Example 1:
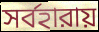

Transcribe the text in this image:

সর্বহারায়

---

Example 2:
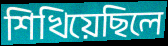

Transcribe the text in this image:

শিখিয়েছিলে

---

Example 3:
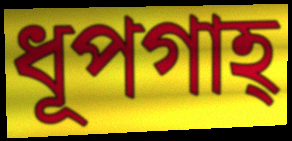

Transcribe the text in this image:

ধূপগাহ্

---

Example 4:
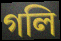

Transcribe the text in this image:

গলি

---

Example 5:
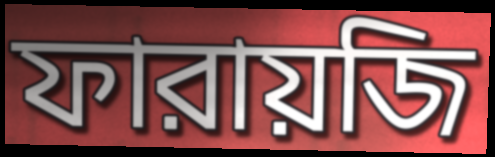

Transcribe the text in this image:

ফারায়জি